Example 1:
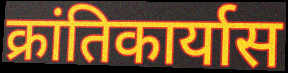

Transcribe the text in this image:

क्रांतिकार्यास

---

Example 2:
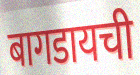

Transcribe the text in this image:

बागडायची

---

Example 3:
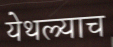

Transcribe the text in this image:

येथल्याच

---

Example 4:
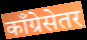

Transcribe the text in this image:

काँग्रेसेतर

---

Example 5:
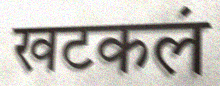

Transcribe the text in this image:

खटकलं